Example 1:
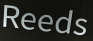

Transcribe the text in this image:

Reeds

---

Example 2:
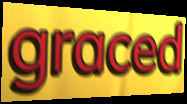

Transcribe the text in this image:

graced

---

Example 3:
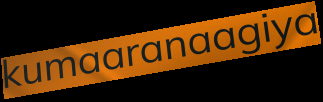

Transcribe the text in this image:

kumaaranaagiya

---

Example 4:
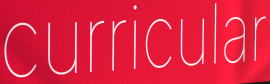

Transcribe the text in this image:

curricular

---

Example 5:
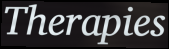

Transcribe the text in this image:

Therapies